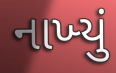
નાખ્‍યું